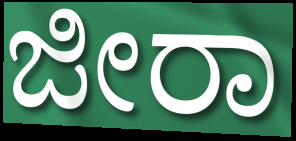
ಜೀರಾ